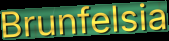
Brunfelsia